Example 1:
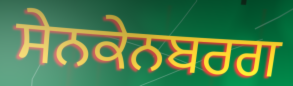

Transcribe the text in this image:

ਸੇਨਕੇਨਬਰਗ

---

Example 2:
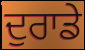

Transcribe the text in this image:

ਦੁਰਾਡੇ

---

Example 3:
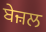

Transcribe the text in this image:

ਬੇਜ਼ਲ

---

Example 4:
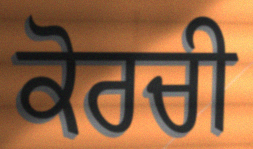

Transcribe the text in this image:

ਕੋਰਚੀ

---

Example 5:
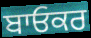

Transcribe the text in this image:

ਬਾਓਕਰ